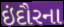
ઇંદૌરના